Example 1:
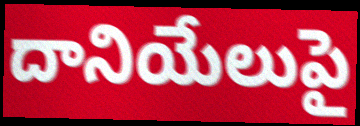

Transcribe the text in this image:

దానియేలుపై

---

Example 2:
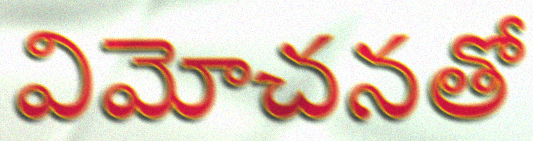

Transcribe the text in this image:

విమోచనతో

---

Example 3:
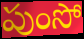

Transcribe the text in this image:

పుంసో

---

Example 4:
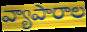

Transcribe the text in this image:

వ్యాపారాల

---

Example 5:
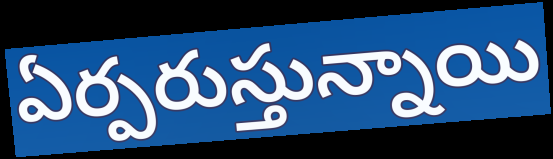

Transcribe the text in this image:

ఏర్పరుస్తున్నాయి